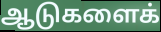
ஆடுகளைக்